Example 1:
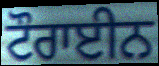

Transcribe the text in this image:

ਟੌਰਾਈਨ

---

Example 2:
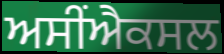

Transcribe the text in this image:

ਅਸੀਂਐਕਸਲ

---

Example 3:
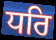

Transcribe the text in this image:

ਧਰਿ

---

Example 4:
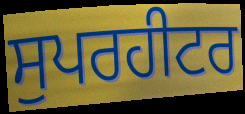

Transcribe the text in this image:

ਸੁਪਰਹੀਟਰ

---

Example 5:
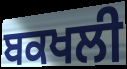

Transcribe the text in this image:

ਬਕਖਲੀ